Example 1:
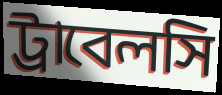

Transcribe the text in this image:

ট্রাবেলসি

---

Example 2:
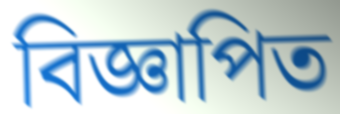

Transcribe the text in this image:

বিজ্ঞাপিত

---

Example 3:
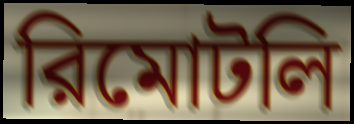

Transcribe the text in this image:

রিমোটলি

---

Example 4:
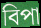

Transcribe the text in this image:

বিপা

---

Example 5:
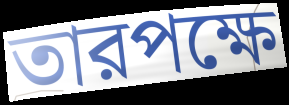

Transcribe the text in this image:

তারপক্ষে